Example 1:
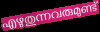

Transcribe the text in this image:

എഴുതുന്നവരുമുണ്ട്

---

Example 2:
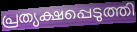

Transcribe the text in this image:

പ്രത്യക്ഷപ്പെടുത്തി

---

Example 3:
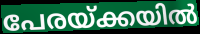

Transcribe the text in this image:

പേരയ്ക്കയിൽ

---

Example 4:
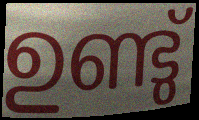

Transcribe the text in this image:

ഉണ്ടു്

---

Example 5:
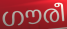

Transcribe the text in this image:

ഗൗരീ